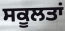
ਸਕੂਲਤਾਂ